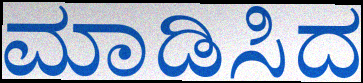
ಮಾಡಿಸಿದ